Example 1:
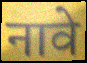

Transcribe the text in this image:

नावे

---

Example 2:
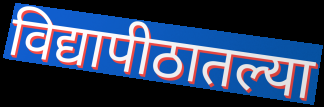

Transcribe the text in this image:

विद्यापीठातल्या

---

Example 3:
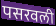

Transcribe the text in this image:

पसरवली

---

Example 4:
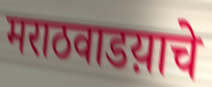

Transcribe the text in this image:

मराठवाडय़ाचे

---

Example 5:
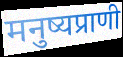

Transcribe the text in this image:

मनुष्यप्राणी